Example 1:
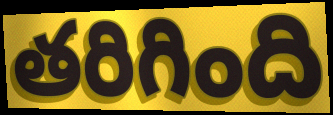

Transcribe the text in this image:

తరిగింది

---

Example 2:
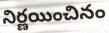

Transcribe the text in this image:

నిర్ణయించినం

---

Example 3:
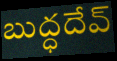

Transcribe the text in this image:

బుద్ధదేవ్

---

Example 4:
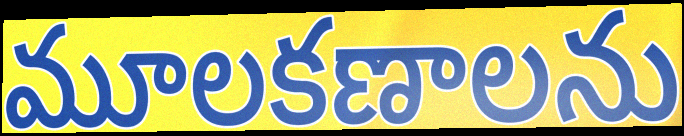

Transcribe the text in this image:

మూలకణాలను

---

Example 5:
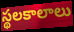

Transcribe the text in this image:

స్థలకాలాలు